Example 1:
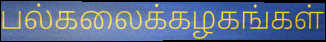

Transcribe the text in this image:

பல்கலைக்கழகங்கள்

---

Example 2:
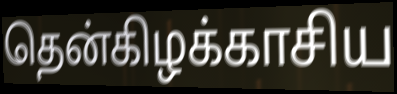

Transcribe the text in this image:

தென்கிழக்காசிய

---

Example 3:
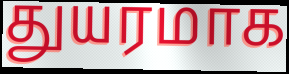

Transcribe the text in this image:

துயரமாக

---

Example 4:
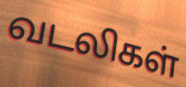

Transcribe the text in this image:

வடலிகள்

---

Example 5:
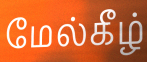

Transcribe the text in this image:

மேல்கீழ்